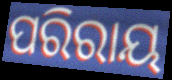
ପରିରାୟ